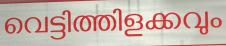
വെട്ടിത്തിളക്കവും